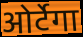
ओर्टेगा